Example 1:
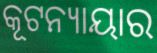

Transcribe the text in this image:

କୂଟନ୍ୟାୟାର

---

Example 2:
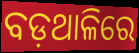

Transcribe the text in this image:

ବଡ଼ଥାଳିରେ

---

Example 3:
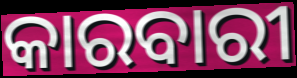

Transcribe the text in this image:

କାରବାରୀ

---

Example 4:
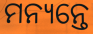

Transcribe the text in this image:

ମନ୍ୟନ୍ତେ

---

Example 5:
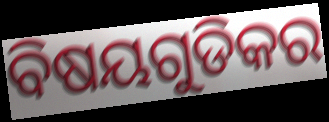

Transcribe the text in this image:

ବିଷୟଗୁଡିକର